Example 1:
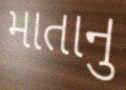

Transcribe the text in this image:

માતાનુ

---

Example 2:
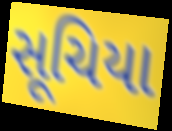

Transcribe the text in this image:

સૂચિયા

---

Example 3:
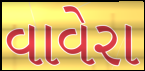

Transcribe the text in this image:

વાવેરા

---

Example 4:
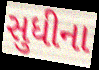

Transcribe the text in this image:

સુધીના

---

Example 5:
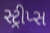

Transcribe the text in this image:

સ્ટ્રીપ્સ